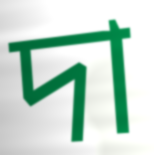
দা